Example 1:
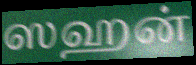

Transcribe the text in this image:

ஸஹன்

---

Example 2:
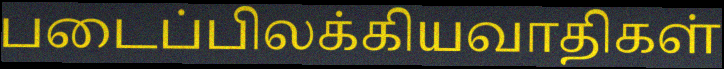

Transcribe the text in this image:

படைப்பிலக்கியவாதிகள்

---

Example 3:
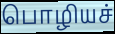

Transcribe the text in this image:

பொழியச்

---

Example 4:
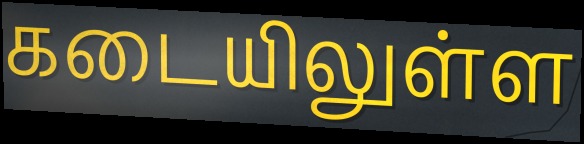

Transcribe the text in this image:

கடையிலுள்ள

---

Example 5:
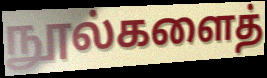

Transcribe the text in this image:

நூல்களைத்